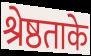
श्रेष्ठताके